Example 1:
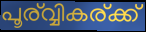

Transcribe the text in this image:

പൂര്വ്വികര്ക്ക്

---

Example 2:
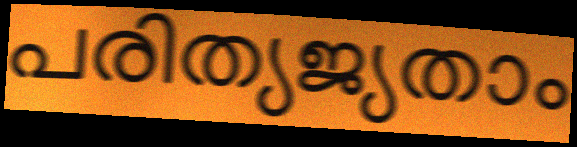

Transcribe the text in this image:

പരിത്യജ്യതാം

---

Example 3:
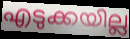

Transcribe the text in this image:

എടുക്കയില്ല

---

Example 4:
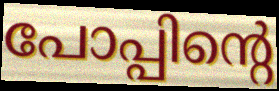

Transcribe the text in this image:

പോപ്പിന്റെ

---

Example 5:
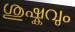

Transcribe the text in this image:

ശുഷ്കവും